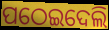
ପଠେଇଦେଲି